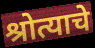
श्रोत्याचे